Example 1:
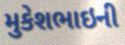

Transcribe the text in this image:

મુકેશભાઇની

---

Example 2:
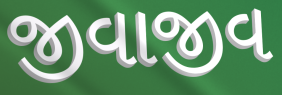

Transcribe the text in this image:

જીવાજીવ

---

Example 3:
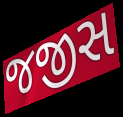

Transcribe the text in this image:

જજીસ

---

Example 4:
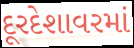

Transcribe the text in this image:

દૂરદેશાવરમાં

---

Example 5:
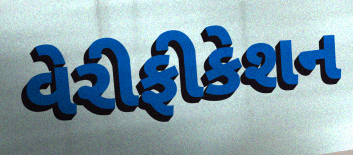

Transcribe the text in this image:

વેરીફીકેશન